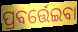
ପ୍ରବର୍ତ୍ତେଇବା